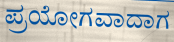
ಪ್ರಯೋಗವಾದಾಗ